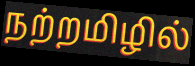
நற்றமிழில்